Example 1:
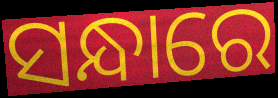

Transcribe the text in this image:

ସନ୍ଧାରେ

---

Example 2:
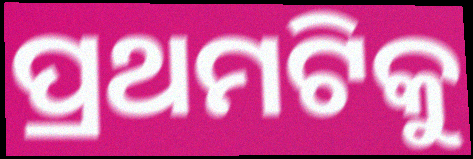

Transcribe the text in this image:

ପ୍ରଥମଟିକୁ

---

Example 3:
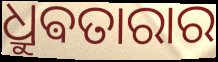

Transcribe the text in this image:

ଧ୍ରୁଵତାରାର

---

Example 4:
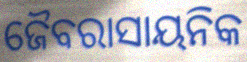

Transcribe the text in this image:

ଜୈବରାସାୟନିକ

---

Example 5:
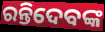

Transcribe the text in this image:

ରନ୍ତିଦେବଙ୍କ